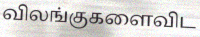
விலங்குகளைவிட